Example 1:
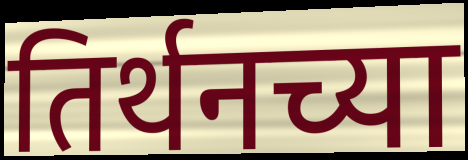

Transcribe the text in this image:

तिर्थनच्या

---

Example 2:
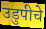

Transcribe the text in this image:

उडुपीचे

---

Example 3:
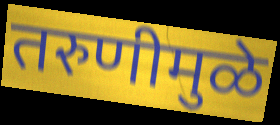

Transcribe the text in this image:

तरुणीमुळे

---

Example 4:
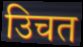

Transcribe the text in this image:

उिचत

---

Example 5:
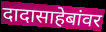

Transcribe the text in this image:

दादासाहेबांवर